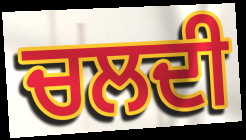
ਚਲਦੀ